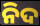
ନିଦ